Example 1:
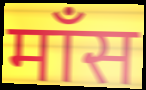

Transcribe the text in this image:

मॉंस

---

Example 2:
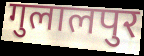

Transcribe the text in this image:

गुलालपुर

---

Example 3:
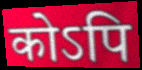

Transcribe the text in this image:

कोऽपि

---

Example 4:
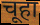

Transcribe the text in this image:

चूहा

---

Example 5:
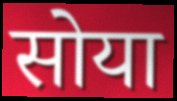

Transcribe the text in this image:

सोया